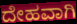
ದೇಹವಾಗಿ